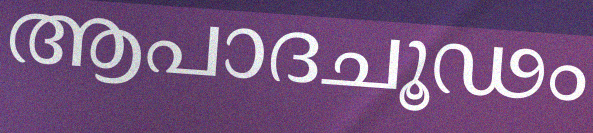
ആപാദചൂഢം